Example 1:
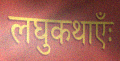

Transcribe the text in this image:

लघुकथाएँः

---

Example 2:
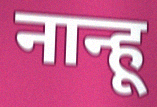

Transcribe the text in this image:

नान्हू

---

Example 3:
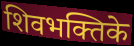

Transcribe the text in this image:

शिवभक्तिके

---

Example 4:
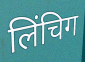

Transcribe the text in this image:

लिंचिग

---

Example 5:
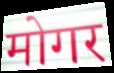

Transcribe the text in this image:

मोगर